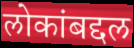
लोकांबद्दल